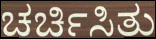
ಚರ್ಚಿಸಿತು